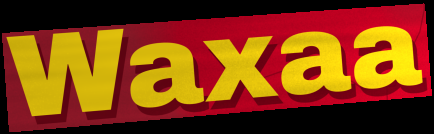
Waxaa